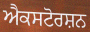
ਐਕਸਟੋਰਸ਼ਨ